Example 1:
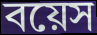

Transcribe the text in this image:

বয়েস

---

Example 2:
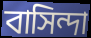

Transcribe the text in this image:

বাসিন্দা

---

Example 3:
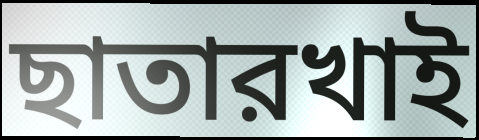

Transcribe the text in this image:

ছাতারখাই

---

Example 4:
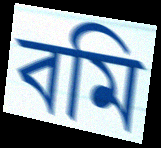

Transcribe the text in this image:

বমি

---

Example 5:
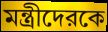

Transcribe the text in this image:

মন্ত্রীদেরকে